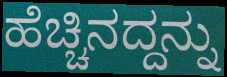
ಹೆಚ್ಚಿನದ್ದನ್ನು